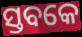
ସ୍ତବକେ